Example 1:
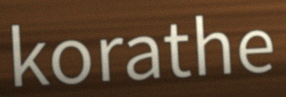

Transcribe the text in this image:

korathe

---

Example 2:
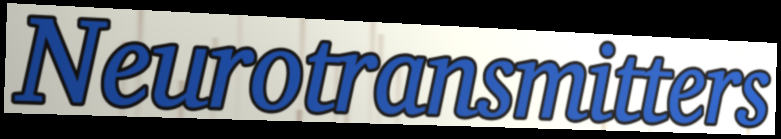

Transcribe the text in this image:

Neurotransmitters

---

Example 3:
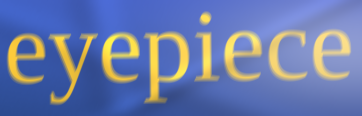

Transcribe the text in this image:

eyepiece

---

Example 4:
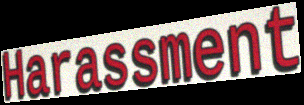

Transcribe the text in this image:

Harassment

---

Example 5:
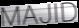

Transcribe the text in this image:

MAJID